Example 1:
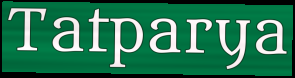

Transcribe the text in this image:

Tatparya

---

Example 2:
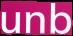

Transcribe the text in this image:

unb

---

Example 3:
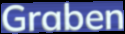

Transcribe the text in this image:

Graben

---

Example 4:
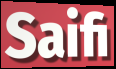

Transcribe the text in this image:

Saifi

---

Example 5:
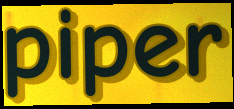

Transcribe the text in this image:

piper